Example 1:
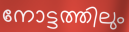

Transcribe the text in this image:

നോട്ടത്തിലും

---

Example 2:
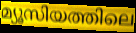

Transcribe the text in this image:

മ്യൂസിയത്തിലെ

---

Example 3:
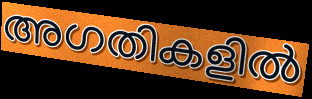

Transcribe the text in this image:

അഗതികളിൽ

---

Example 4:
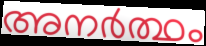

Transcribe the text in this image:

അനർത്ഥം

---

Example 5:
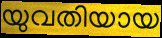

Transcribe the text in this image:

യുവതിയായ